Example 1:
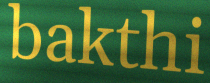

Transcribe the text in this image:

bakthi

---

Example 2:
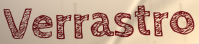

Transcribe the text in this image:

Verrastro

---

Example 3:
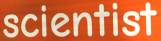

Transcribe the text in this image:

scientist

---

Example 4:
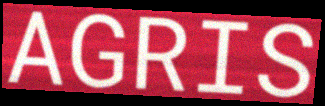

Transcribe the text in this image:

AGRIS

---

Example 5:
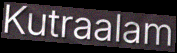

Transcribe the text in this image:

Kutraalam